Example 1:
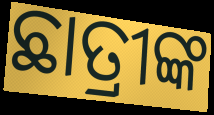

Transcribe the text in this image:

ଛାତ୍ରୀଙ୍କ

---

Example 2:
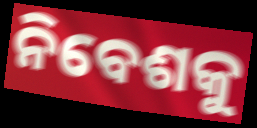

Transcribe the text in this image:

ନିବେଶକୁ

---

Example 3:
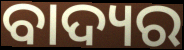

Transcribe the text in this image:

ବାଦ୍ୟର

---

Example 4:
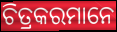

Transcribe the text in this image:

ଚିତ୍ରକରମାନେ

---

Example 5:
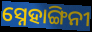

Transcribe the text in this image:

ସ୍ନେହାଙ୍ଗିନୀ